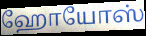
ஹோயோஸ்